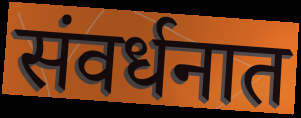
संवर्धनात